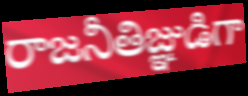
రాజనీతిజ్ఞుడిగా